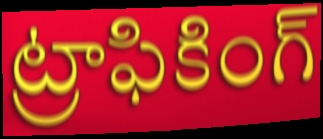
ట్రాఫికింగ్